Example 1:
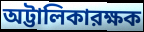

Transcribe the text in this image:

অট্টালিকারক্ষক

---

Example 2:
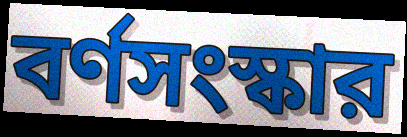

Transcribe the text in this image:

বর্ণসংস্কার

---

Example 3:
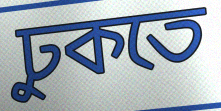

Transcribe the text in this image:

ঢুকতে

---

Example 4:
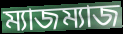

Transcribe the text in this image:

ম্যাজম্যাজ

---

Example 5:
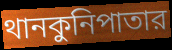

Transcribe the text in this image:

থানকুনিপাতার